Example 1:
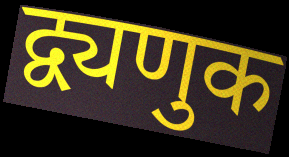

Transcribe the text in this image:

द्व्यणुक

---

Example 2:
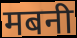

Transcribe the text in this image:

मबनी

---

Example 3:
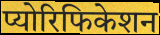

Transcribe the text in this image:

प्योरिफिकेशन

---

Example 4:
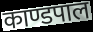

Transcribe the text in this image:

काण्डपाल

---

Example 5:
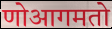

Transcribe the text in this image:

णोआगमतो